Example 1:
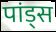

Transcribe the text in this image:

पांड्स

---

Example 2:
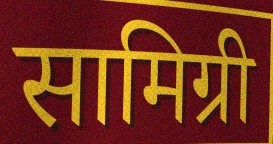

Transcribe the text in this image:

सामिग्री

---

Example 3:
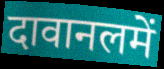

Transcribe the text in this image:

दावानलमें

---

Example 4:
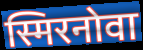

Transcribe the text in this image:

स्मिरनोवा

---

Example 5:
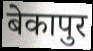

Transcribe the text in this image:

बेकापुर